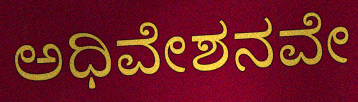
ಅಧಿವೇಶನವೇ